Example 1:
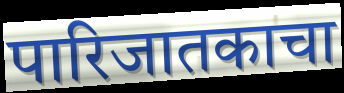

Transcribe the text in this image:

पारिजातकाचा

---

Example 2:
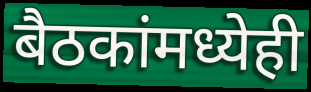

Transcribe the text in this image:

बैठकांमध्येही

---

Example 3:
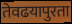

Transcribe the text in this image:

तेवढयापुरता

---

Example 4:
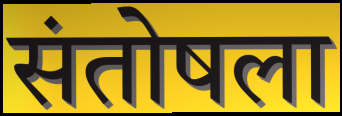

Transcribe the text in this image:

संतोषला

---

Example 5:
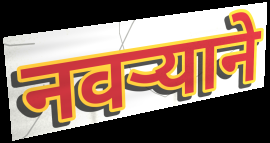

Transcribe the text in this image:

नवर्‍याने